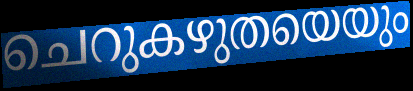
ചെറുകഴുതയെയും